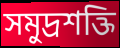
সমুদ্রশক্তি